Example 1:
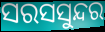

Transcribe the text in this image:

ସରସସୁନ୍ଦର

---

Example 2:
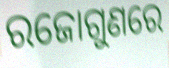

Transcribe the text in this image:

ରଜୋଗୁଣରେ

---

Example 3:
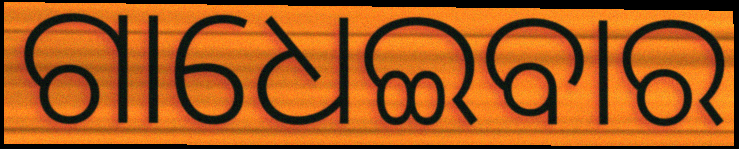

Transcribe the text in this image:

ଗାଧେଇବାର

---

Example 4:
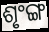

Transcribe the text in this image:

ଶୃଂଙ୍ଗ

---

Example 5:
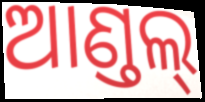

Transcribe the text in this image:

ଆଣ୍ଡଲ୍